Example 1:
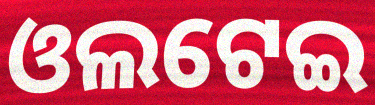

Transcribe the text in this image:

ଓଲଟେଇ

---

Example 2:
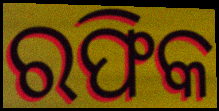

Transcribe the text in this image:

ରଫିକ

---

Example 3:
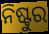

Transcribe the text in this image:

ନିଷ୍ଟୁର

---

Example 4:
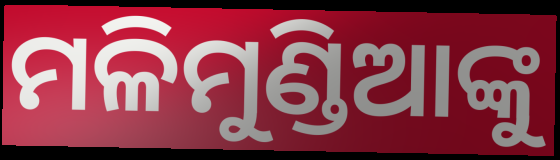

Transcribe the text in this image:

ମଳିମୁଣ୍ଡିଆଙ୍କୁ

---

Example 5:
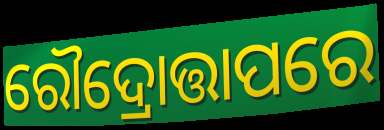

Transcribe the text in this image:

ରୌଦ୍ରୋତ୍ତାପରେ